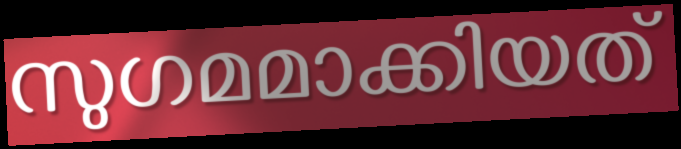
സുഗമമാക്കിയത്